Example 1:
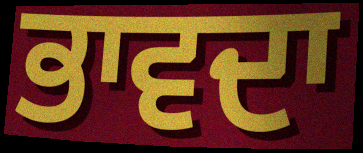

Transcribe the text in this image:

ਭਾਵਦਾ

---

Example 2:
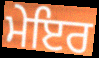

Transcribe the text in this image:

ਮੇਇਰ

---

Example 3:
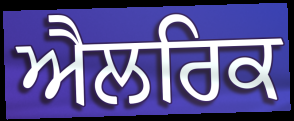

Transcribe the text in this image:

ਐਲਰਿਕ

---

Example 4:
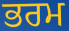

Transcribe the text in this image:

ਭਰਮ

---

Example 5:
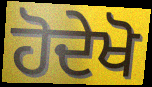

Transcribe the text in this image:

ਹੋਦੇਖੋ